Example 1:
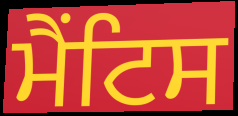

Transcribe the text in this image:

ਮੈਂਟਿਸ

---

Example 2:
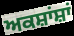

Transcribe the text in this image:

ਅਕਸ਼ਾਂਸ਼ਾਂ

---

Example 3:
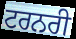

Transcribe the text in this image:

ਟਰਨਰੀ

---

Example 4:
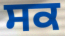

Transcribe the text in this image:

ਸਕ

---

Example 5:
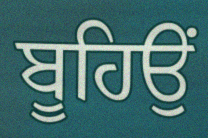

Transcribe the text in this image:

ਬੂਹਿਉਂ